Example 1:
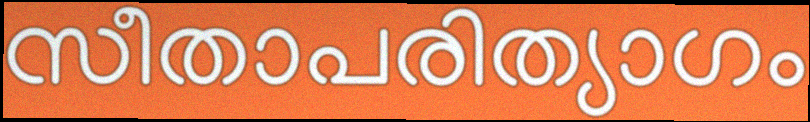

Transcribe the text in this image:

സീതാപരിത്യാഗം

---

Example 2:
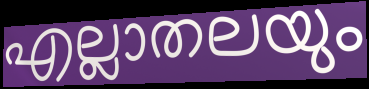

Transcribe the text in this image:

എല്ലാതലയും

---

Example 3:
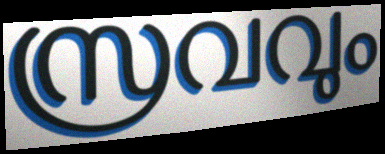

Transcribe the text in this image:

സ്രവവും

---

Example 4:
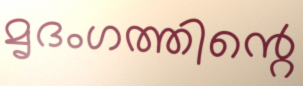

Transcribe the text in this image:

മൃദംഗത്തിന്റെ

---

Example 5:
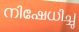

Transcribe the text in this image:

നിഷേധിച്ചു